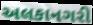
અલકાનગરી